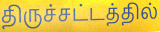
திருச்சட்டத்தில்